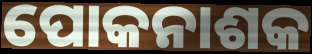
ପୋକନାଶକ